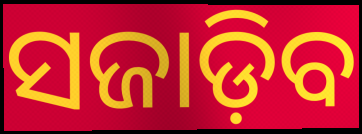
ସଜାଡ଼ିବ